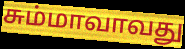
சும்மாவாவது